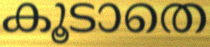
കൂടാതെ